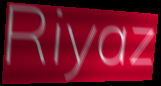
Riyaz